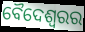
ବୈଦେଶ୍ୱରର